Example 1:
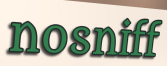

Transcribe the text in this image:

nosniff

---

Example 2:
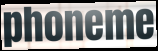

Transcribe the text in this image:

phoneme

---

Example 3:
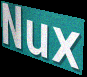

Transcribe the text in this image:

Nux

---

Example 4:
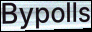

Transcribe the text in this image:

Bypolls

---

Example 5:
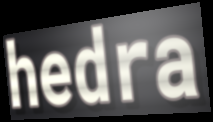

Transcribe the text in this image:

hedra